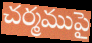
చర్మముపై